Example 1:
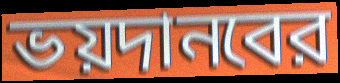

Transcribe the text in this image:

ভয়দানবের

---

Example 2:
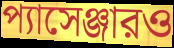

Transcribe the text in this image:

প্যাসেঞ্জারও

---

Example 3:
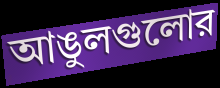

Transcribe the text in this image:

আঙুলগুলোর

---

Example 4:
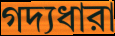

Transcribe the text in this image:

গদ্যধারা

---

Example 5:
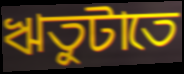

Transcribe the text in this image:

ঋতুটাতে